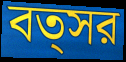
বত্সর